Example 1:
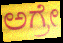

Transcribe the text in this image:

ಅಗ್ರೇ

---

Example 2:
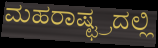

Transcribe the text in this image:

ಮಹರಾಷ್ಟ್ರದಲ್ಲಿ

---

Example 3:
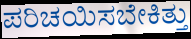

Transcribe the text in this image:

ಪರಿಚಯಿಸಬೇಕಿತ್ತು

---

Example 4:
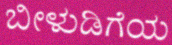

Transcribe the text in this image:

ಬೀಳುಡಿಗೆಯ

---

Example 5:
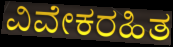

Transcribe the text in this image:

ವಿವೇಕರಹಿತ